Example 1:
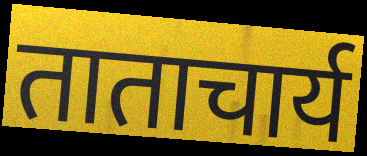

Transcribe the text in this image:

ताताचार्य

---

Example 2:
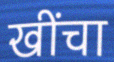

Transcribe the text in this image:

खींचा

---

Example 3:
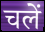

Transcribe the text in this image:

चलें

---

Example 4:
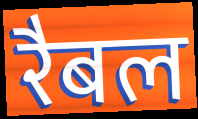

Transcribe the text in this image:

रैबल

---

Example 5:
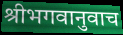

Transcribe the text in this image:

श्रीभगवानुवाच